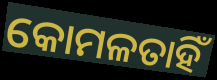
କୋମଳତାହିଁ